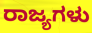
ರಾಜ್ಯಗಳು